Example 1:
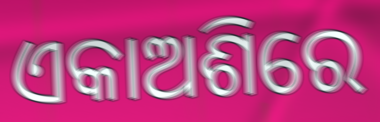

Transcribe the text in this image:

ଏକାଅଶିରେ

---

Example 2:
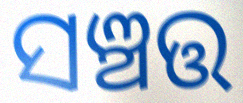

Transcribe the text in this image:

ସଞ୍ଚତ୍ତ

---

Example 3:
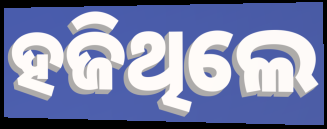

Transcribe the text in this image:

ହଜିଥିଲେ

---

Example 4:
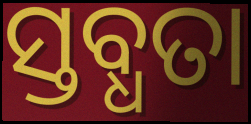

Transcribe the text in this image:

ସ୍ତବ୍ଧତା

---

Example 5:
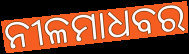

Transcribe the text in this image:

ନୀଳମାଧବର